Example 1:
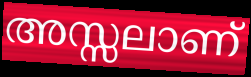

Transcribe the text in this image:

അസ്സലാണ്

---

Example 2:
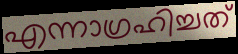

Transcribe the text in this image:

എന്നാഗ്രഹിച്ചത്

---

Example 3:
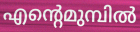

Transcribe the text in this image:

എന്റെമുമ്പിൽ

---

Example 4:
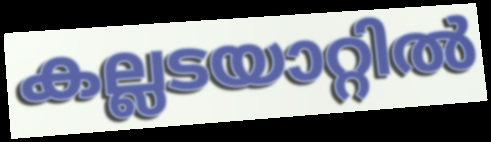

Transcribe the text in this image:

കല്ലടയാറ്റിൽ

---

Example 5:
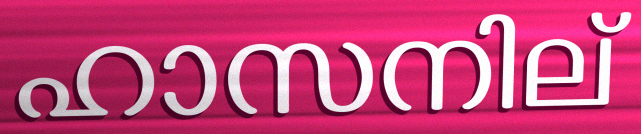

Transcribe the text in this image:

ഹാസനില്